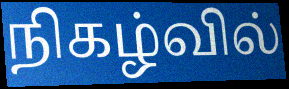
நிகழ்வில்